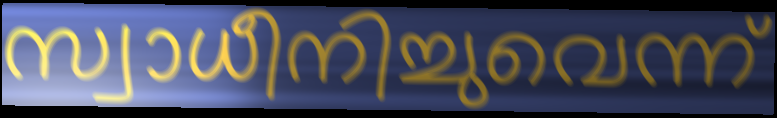
സ്വാധീനിച്ചുവെന്ന്